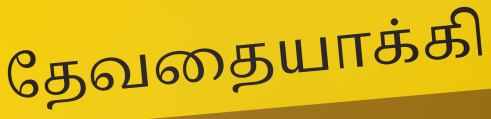
தேவதையாக்கி